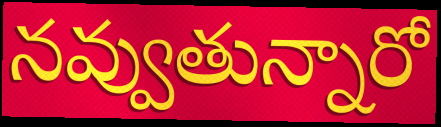
నవ్వుతున్నారో